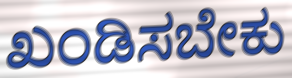
ಖಂಡಿಸಬೇಕು